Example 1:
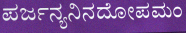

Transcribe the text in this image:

ಪರ್ಜನ್ಯನಿನದೋಪಮಂ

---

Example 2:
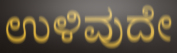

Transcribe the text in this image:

ಉಳಿವುದೇ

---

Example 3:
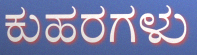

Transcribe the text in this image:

ಕುಹರಗಳು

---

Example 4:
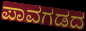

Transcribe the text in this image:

ಪಾವಗಡದ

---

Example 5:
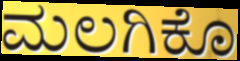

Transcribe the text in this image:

ಮಲಗಿಕೊ